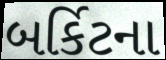
બર્કિટના